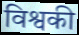
विश्वकी